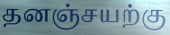
தனஞ்சயற்கு